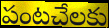
పంటచేలకు